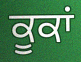
ਕੂਕਾਂ